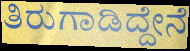
ತಿರುಗಾಡಿದ್ದೇನೆ